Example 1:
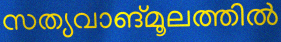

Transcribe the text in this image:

സത്യവാങ്മൂലത്തിൽ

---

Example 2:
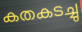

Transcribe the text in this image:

കതകടച്ചു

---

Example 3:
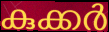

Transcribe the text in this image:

കുക്കർ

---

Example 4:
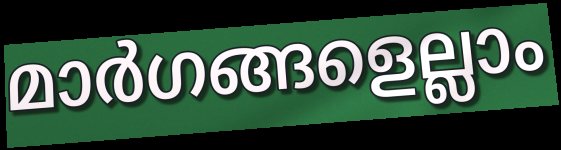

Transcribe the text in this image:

മാർഗങ്ങളെല്ലാം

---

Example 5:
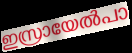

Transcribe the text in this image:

ഇസ്രായേൽപാ